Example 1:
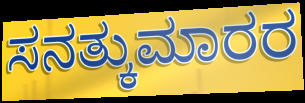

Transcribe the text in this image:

ಸನತ್ಕುಮಾರರ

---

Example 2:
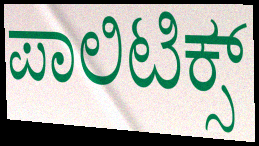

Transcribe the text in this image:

ಪಾಲಿಟಿಕ್ಸ್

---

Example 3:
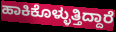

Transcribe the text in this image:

ಹಾಕಿಕೊಳ್ಳುತ್ತಿದ್ದಾರೆ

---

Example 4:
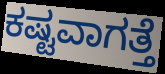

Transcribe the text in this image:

ಕಷ್ಟವಾಗತ್ತೆ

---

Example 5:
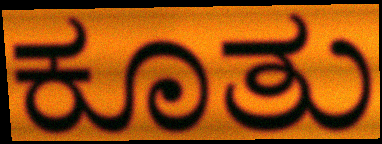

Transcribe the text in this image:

ಕೂತು